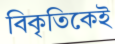
বিকৃতিকেই